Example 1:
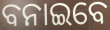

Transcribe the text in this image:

ବନାଇବେ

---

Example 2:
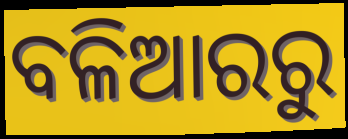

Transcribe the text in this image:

ବଳିଆରରୁ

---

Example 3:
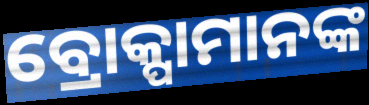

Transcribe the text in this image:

ବ୍ରୋକ୍ପାମାନଙ୍କ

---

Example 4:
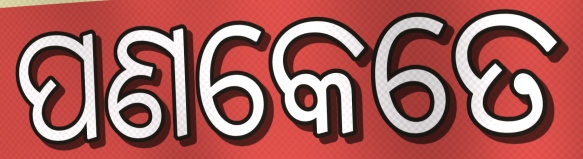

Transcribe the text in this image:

ପଣକେତେ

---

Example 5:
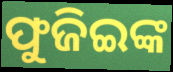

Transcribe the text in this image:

ଫୁଜିଇଙ୍କ